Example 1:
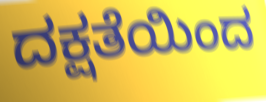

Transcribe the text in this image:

ದಕ್ಷತೆಯಿಂದ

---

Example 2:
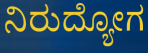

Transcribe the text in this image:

ನಿರುದ್ಯೋಗ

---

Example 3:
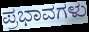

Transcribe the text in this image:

ಪ್ರಭಾವಗಳು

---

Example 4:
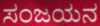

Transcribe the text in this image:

ಸಂಜಯನ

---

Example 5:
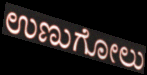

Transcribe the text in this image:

ಉಣುಗೋಲು